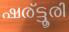
ഷര്ട്ടൂരി